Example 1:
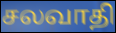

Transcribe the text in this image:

சலவாதி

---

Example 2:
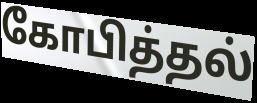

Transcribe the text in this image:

கோபித்தல்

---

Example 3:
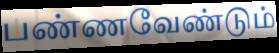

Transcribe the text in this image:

பண்ணவேண்டும்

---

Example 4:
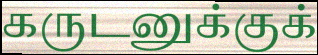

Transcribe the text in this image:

கருடனுக்குக்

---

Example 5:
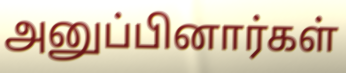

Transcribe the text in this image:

அனுப்பினார்கள்